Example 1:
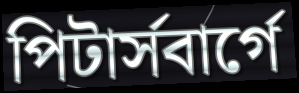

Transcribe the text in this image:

পিটার্সবার্গে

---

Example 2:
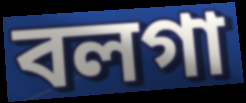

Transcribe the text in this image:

বলগা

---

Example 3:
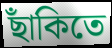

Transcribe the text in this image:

ছাঁকিতে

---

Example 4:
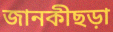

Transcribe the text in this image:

জানকীছড়া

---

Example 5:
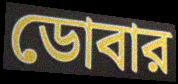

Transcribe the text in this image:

ডোবার